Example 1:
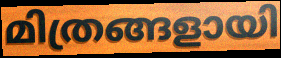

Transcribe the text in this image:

മിത്രങ്ങളായി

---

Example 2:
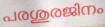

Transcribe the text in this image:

പരശുരജിനം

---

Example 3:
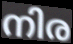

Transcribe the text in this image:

നിര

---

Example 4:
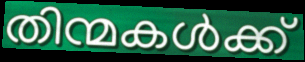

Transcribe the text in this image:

തിന്മകൾക്ക്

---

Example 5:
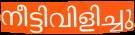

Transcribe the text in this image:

നീട്ടിവിളിച്ചു